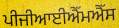
ਪੀਜੀਆਈਐੱਮਐੱਸ